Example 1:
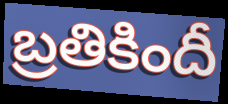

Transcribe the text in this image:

బ్రతికిందీ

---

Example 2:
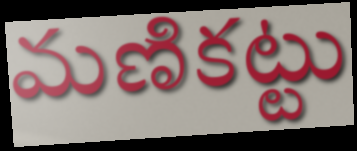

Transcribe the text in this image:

మణికట్టు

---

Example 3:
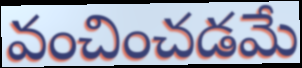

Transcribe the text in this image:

వంచించడమే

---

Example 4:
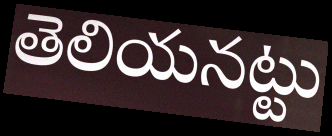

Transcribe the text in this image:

తెలియనట్టు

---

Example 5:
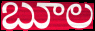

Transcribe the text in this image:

బూల